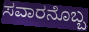
ಸವಾರನೊಬ್ಬ